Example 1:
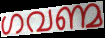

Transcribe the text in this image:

ഗവണ്മ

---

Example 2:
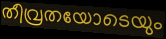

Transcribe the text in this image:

തീവ്രതയോടെയും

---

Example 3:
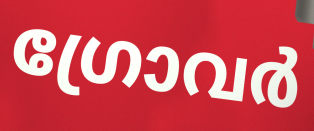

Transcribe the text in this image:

ഗ്രോവർ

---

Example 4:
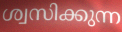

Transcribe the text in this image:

ശ്വസിക്കുന്ന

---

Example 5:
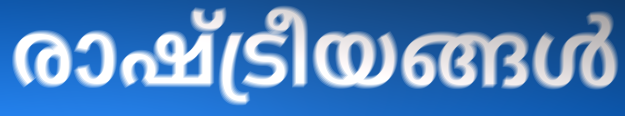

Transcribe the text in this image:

രാഷ്ട്രീയങ്ങൾ